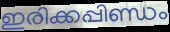
ഇരിക്കപ്പിണ്ഡം